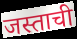
जस्ताची